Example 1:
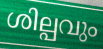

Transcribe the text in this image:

ശില്പവും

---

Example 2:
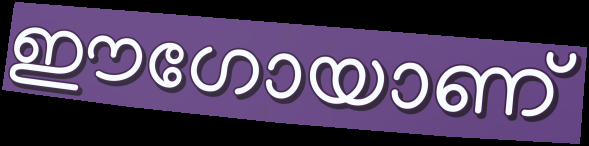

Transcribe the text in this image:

ഈഗോയാണ്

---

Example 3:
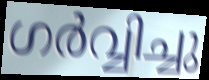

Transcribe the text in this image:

ഗർവ്വിച്ചു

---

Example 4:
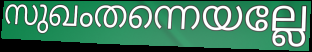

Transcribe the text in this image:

സുഖംതന്നെയല്ലേ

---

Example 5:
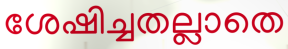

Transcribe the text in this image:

ശേഷിച്ചതല്ലാതെ